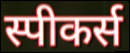
स्पीकर्स